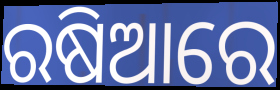
ରଷିଆରେ